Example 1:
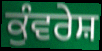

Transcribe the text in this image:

ਕੁੰਵਰੇਸ਼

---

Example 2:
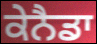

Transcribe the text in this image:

ਕੇਨੈਡਾ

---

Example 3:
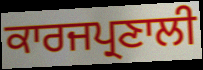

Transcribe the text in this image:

ਕਾਰਜਪ੍ਰਣਾਲੀ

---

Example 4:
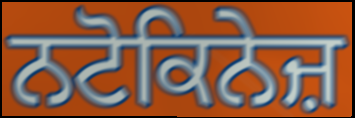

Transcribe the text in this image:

ਨਟੋਕਿਨੇਜ਼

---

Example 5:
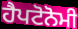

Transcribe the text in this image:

ਹੈਪਟੋਨੋਮੀ